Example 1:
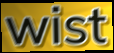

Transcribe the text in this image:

wist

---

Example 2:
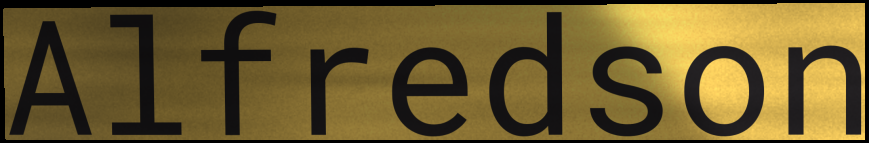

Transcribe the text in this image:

Alfredson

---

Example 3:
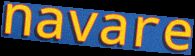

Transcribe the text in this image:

navare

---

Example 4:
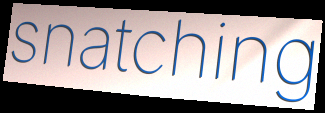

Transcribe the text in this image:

snatching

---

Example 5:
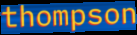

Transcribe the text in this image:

thompson